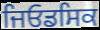
ਜਿਓਡਸਿਕ